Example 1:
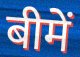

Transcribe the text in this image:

बीमें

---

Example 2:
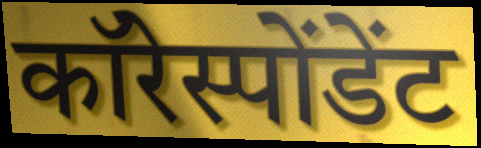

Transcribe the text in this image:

कॉरेस्पोंडेंट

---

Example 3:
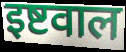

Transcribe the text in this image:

इष्टवाल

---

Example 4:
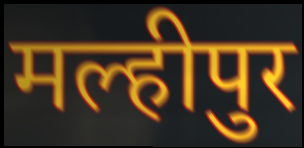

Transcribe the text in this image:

मल्हीपुर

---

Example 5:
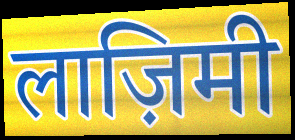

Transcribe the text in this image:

लाज़िमी